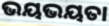
ଭୟଭୟତା